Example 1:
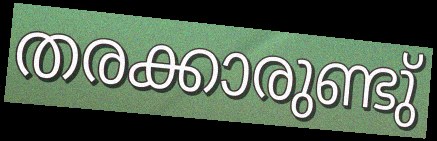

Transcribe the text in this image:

തരക്കാരുണ്ടു്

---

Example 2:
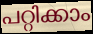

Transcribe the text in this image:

പറ്റിക്കാം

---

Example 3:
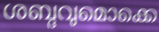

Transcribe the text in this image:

ശബ്ദവുമൊക്കെ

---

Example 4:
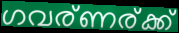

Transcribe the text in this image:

ഗവര്ണര്ക്ക്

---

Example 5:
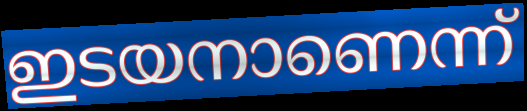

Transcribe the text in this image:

ഇടയനാണെന്ന്